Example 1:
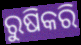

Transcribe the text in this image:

ରୁଷିକରି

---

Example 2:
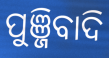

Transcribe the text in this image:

ପୁଞ୍ଜିବାଦି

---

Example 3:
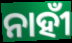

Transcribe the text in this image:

ନାହୀଁ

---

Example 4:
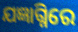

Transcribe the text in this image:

ଯଜ୍ଞାଗ୍ନିରେ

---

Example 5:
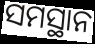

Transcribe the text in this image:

ସମସ୍ଥାନ